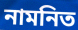
নামনিত